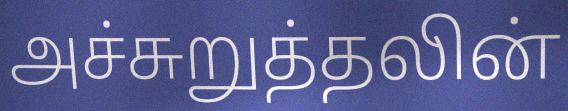
அச்சுறுத்தலின்